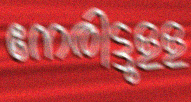
നേരിട്ടുളള